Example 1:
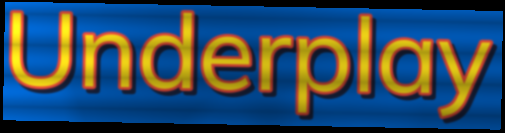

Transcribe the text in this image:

Underplay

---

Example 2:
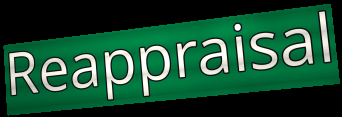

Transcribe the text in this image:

Reappraisal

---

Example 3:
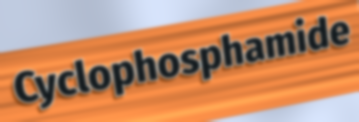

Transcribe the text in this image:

Cyclophosphamide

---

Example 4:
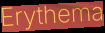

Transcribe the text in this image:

Erythema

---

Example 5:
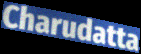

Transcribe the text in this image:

Charudatta